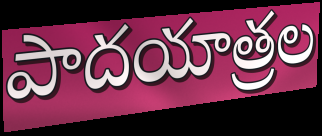
పాదయాత్రల